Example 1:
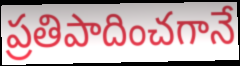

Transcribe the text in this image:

ప్రతిపాదించగానే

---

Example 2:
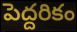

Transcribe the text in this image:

పెద్దరికం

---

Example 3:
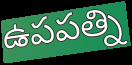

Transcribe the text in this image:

ఉపపత్ని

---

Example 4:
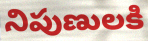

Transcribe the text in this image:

నిపుణులకి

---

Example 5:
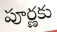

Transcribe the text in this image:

పూర్ణకు